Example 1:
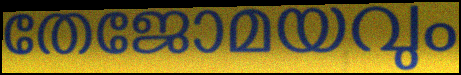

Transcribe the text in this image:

തേജോമയവും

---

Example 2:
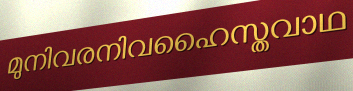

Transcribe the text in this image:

മുനിവരനിവഹൈസ്തവാഥ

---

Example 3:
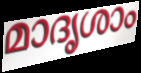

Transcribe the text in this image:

മാദൃശാം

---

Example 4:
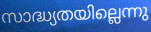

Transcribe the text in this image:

സാദ്ധ്യതയില്ലെന്നു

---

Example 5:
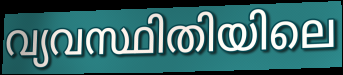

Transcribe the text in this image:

വ്യവസ്ഥിതിയിലെ